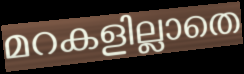
മറകളില്ലാതെ